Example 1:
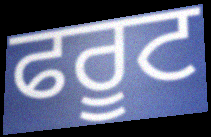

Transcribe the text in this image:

ਫਰੂਟ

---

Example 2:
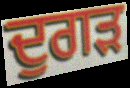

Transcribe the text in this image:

ਦੁਗੜ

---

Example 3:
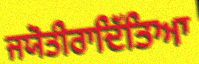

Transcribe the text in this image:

ਜਯੋਤੀਰਾਦਿੱਤਿਆ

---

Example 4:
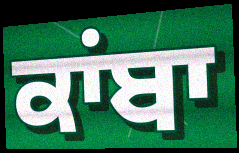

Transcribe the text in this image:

ਕਾਂਬਾ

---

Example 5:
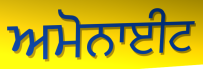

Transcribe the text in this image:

ਅਮੋਨਾਈਟ